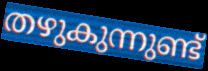
തഴുകുന്നുണ്ട്